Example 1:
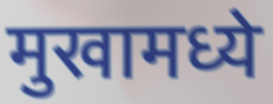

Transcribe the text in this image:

मुखामध्ये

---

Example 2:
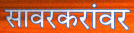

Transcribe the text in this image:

सावरकरांवर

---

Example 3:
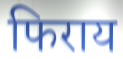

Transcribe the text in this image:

फिराय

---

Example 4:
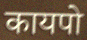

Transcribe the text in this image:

कायपो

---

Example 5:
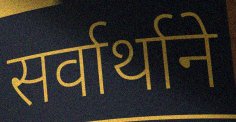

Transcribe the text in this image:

सर्वार्थाने